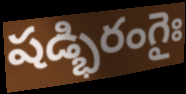
షడ్భిరంగైః